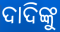
ଦାଦିଙ୍କୁ